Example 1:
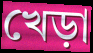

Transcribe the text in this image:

খেড়া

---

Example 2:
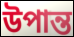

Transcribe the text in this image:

উপান্ত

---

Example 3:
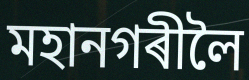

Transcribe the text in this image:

মহানগৰীলৈ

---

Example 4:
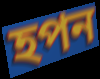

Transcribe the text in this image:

হপন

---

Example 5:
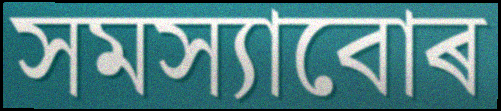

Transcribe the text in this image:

সমস্যাবোৰ